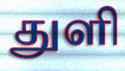
துளி